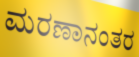
ಮರಣಾನಂತರ